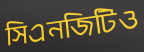
সিএনজিটিও